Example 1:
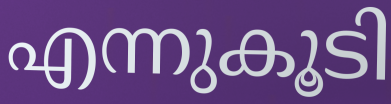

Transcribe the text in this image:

എന്നുകൂടി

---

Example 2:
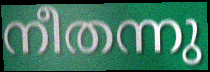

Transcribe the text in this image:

നീതന്നു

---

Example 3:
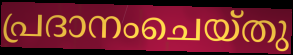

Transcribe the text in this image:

പ്രദാനംചെയ്തു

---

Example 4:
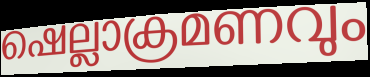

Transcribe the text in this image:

ഷെല്ലാക്രമണവും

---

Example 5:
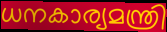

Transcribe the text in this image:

ധനകാര്യമന്ത്രി